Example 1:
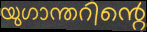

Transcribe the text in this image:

യുഗാന്തറിന്റെ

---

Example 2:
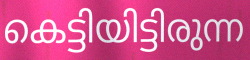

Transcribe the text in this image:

കെട്ടിയിട്ടിരുന്ന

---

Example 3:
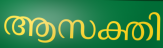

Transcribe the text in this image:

ആസക്തി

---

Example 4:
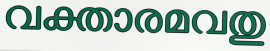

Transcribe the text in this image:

വക്താരമവതു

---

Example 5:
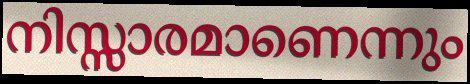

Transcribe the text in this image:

നിസ്സാരമാണെന്നും